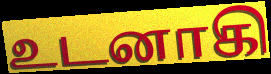
உடனாகி